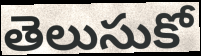
తెలుసుకో